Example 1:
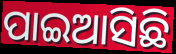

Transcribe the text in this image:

ପାଇଆସିଛି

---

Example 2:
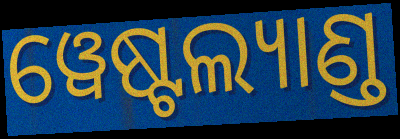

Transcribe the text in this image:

ୱେଷ୍ଟଲ୍ୟାଣ୍ଡ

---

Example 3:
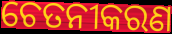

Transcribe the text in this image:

ଚେତନୀକରଣ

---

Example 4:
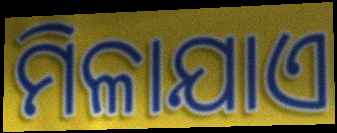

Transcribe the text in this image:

ମିଳାଯାଏ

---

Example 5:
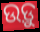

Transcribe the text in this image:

ଉଡ଼ୁ